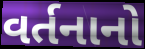
વર્તનાનો